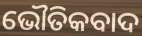
ଭୌତିକବାଦ